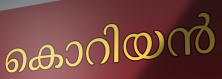
കൊറിയൻ